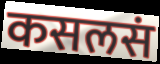
कसलसं